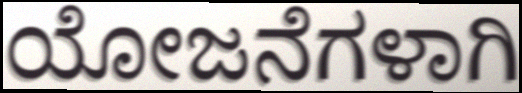
ಯೋಜನೆಗಳಾಗಿ